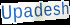
Upadesh